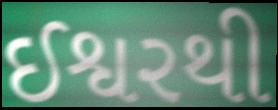
ઈશ્વરથી